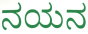
ನಯನ